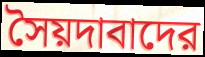
সৈয়দাবাদের